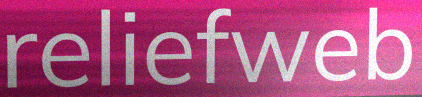
reliefweb